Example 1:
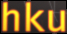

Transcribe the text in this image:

hku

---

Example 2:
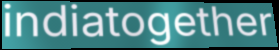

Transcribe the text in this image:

indiatogether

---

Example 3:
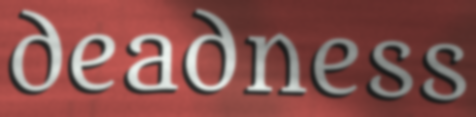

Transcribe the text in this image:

deadness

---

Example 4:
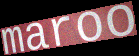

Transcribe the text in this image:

maroo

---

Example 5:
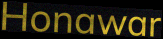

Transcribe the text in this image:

Honawar